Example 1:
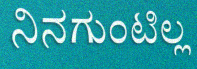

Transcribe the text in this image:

ನಿನಗುಂಟಿಲ್ಲ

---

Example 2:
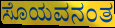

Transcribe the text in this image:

ಸೊಯವನಂತ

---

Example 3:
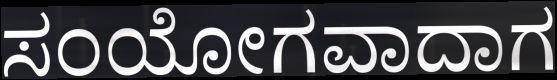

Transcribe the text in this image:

ಸಂಯೋಗವಾದಾಗ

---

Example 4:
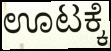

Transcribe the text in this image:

ಊಟಕ್ಕೆ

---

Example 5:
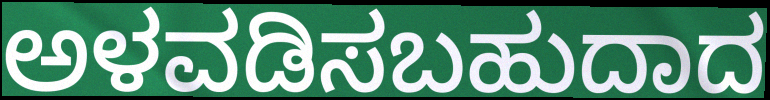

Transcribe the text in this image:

ಅಳವಡಿಸಬಹುದಾದ